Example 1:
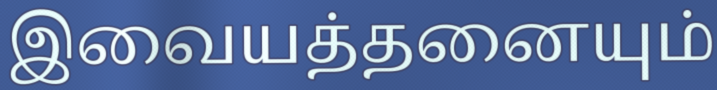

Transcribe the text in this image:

இவையத்தனையும்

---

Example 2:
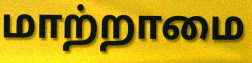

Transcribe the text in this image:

மாற்றாமை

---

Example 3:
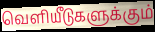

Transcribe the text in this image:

வெளியீடுகளுக்கும்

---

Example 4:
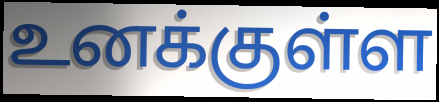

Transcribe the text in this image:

உனக்குள்ள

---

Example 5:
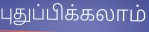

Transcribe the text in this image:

புதுப்பிக்கலாம்